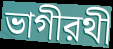
ভাগীরথী